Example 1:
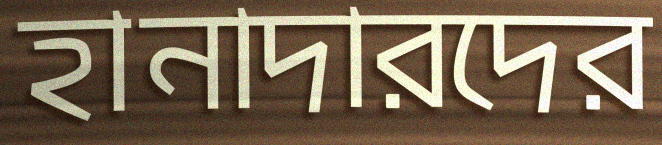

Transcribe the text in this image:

হানাদারদের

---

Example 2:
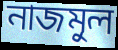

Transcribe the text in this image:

নাজমুল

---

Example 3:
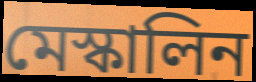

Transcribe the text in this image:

মেস্কালিন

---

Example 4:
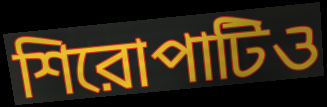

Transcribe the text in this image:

শিরোপাটিও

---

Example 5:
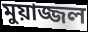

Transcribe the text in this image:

মুয়াজ্জল